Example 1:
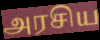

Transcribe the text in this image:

அரசிய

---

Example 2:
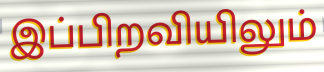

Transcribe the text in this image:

இப்பிறவியிலும்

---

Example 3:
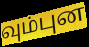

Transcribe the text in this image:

வும்புன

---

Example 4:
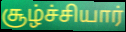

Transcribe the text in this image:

சூழ்ச்சியார்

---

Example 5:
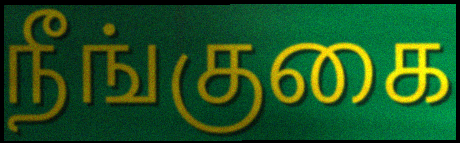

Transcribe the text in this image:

நீங்குகை